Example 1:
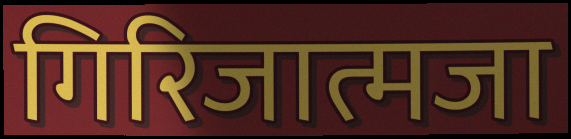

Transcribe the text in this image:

गिरिजात्मजा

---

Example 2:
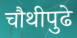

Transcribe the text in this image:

चौथीपुढे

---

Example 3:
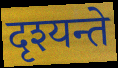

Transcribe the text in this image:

दृश्यन्ते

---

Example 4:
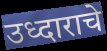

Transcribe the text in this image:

उध्दाराचे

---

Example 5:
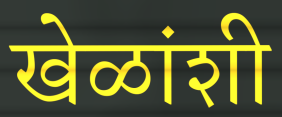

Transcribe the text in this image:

खेळांशी